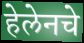
हेलेनचे